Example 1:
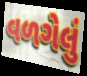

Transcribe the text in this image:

વળગેલું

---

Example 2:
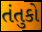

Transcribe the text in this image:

તંતુકો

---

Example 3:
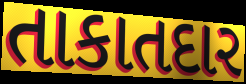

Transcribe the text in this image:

તાકાતદાર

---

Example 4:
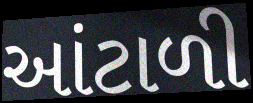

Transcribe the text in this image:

આંટાળી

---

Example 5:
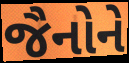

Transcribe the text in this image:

જૈનોને